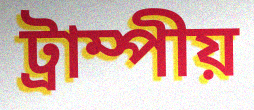
ট্রাম্পীয়